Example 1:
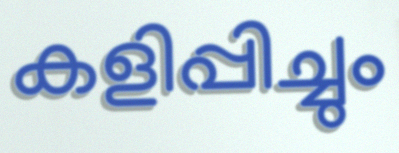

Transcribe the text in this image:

കളിപ്പിച്ചും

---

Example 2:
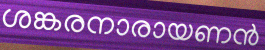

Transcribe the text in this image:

ശങ്കരനാരായണൻ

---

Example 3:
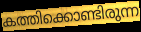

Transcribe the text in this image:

കത്തിക്കൊണ്ടിരുന്ന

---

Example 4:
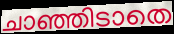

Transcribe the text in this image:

ചാഞ്ഞിടാതെ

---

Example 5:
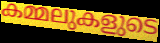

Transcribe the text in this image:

കമ്മലുകളുടെ